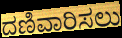
ದಣಿವಾರಿಸಲು